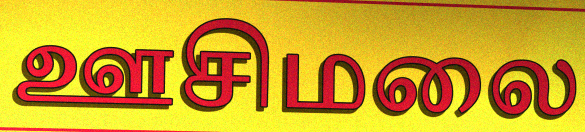
ஊசிமலை